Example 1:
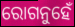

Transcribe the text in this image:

ରୋଗନୁହେଁ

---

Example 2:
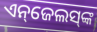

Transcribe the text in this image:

ଏନ୍‌ଜେଲସ୍‌ଙ୍କ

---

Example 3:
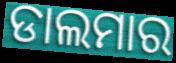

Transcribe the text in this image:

ଡାଲମାର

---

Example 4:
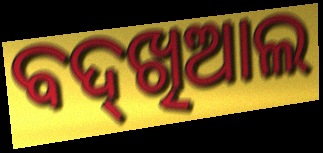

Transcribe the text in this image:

ବଦ୍‌ଖିଆଲ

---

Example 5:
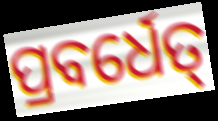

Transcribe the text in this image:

ପ୍ରବର୍ଧେତ୍